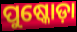
ପୁଷ୍କୋଡ଼ା